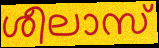
ശീലാസ്